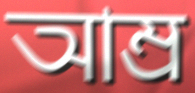
আম্র